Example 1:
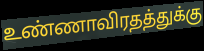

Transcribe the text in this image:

உண்ணாவிரதத்துக்கு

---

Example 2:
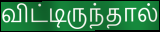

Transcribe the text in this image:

விட்டிருந்தால்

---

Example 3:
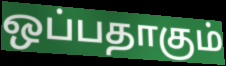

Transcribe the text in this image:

ஒப்பதாகும்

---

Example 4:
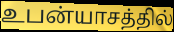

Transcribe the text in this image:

உபன்யாசத்தில்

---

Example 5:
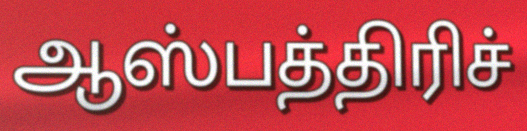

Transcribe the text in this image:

ஆஸ்பத்திரிச்